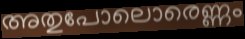
അതുപോലൊരെണ്ണം